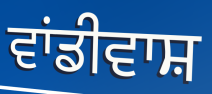
ਵਾਂਡੀਵਾਸ਼